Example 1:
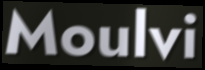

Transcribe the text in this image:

Moulvi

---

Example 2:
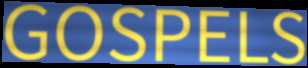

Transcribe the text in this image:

GOSPELS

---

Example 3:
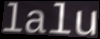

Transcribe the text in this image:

lalu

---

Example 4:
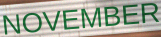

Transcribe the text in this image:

NOVEMBER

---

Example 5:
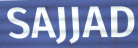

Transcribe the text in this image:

SAJJAD